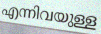
എന്നിവയുള്ള